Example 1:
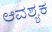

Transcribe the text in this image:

ಆವಶ್ಯಕ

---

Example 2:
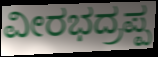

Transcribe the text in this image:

ವೀರಭದ್ರಪ್ಪ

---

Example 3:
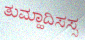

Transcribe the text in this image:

ತುಮ್ಹಾದಿಸಸ್ಸ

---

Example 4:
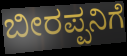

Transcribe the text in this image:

ಬೀರಪ್ಪನಿಗೆ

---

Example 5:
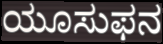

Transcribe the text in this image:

ಯೂಸುಫನ